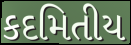
કદમિતીય